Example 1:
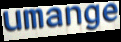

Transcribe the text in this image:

umange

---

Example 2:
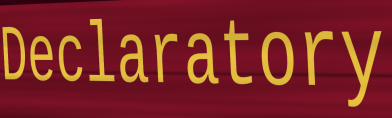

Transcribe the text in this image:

Declaratory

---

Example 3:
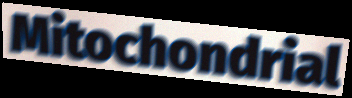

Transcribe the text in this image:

Mitochondrial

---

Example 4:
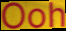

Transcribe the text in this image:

Ooh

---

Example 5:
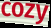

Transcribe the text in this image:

cozy